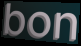
bon